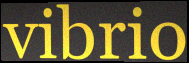
vibrio